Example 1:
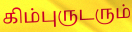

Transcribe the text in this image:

கிம்புருடரும்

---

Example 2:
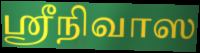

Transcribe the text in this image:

ஸ்ரீநிவாஸ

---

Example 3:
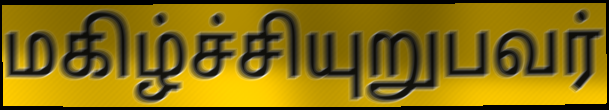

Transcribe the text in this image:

மகிழ்ச்சியுறுபவர்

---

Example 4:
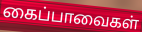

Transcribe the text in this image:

கைப்பாவைகள்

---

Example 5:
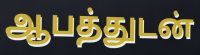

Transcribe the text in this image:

ஆபத்துடன்